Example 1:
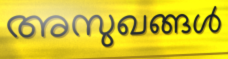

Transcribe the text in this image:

അസുഖങ്ങൾ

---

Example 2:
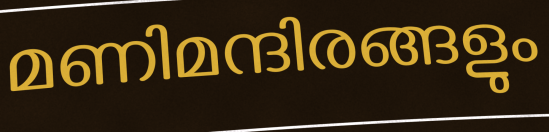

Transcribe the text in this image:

മണിമന്ദിരങ്ങളും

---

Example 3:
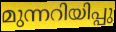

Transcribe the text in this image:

മുന്നറിയിപ്പു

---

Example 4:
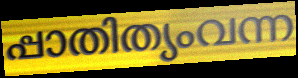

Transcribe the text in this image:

പ്പാതിത്യംവന്ന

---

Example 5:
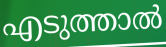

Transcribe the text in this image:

എടുത്താൽ